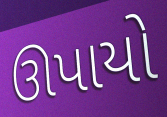
ઊપાયો